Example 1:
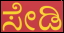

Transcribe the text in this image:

ಸೇಡಿ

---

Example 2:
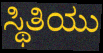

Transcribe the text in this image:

ಸ್ಥಿತಿಯು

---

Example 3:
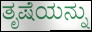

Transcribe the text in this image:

ತೃಷೆಯನ್ನು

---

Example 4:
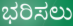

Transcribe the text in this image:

ಭರಿಸಲು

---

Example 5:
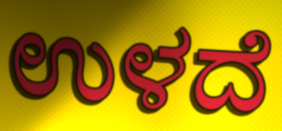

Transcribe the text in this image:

ಉಳದೆ